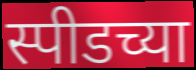
स्पीडच्या